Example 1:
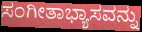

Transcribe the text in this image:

ಸಂಗೀತಾಭ್ಯಾಸವನ್ನು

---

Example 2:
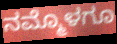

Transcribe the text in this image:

ನಮ್ಮೊಳಗೂ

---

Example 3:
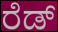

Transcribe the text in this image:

ರೆಡ್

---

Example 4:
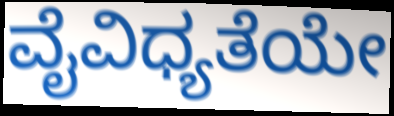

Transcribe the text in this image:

ವೈವಿಧ್ಯತೆಯೇ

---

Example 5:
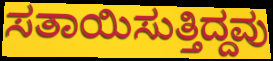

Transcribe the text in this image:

ಸತಾಯಿಸುತ್ತಿದ್ದವು